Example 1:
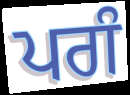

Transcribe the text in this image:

ਪਗੰ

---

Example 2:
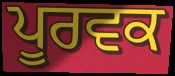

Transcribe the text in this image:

ਪੂਰਵਕ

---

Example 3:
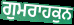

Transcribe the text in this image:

ਗੁਮਰਾਹਕੁਨ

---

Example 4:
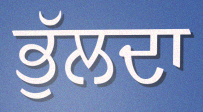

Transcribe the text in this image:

ਭੁੱਲਦਾ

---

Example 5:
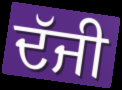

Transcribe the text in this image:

ਦੱਜੀ